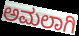
ಅಮಲಾಗಿ